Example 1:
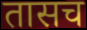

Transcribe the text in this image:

तासच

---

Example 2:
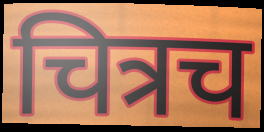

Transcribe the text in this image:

चित्रच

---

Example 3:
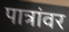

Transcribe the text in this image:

पात्रांवर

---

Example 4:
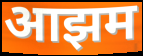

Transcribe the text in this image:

आझम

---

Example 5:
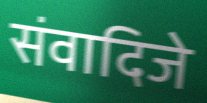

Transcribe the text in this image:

संवादिजे